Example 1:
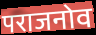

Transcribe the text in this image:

पराजनोव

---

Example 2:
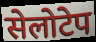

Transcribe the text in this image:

सेलोटेप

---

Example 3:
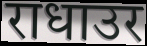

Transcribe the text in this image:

राधाउर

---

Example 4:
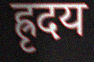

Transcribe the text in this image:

ह्रृदय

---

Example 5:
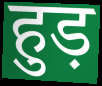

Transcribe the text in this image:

हुड़